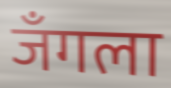
जँगला